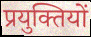
प्रयुक्तियों